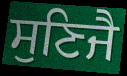
ਸੁਣਿਜੈ